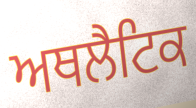
ਅਥਲੈਟਿਕ